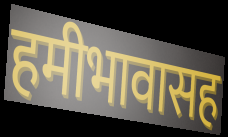
हमीभावासह